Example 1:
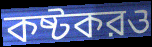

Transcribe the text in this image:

কষ্টকরও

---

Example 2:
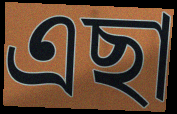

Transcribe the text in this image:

এছা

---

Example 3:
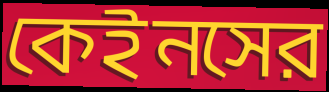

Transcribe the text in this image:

কেইনসের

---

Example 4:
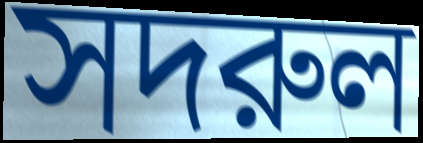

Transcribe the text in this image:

সদরুল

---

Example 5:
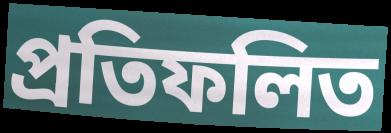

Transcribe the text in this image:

প্রতিফলিত